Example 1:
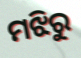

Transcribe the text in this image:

ମଝିରୁ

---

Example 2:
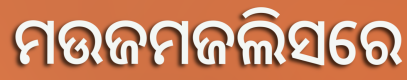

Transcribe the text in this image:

ମଉଜମଜଲିସରେ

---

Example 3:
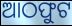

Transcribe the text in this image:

ଆଠଫୁଟ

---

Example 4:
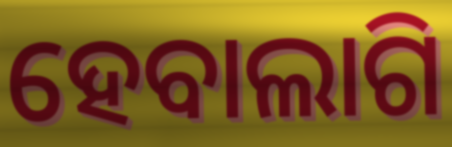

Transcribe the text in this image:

ହେବାଲାଗି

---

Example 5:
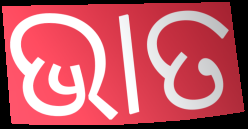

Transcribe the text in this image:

ଭାତ